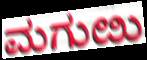
ಮಗುೞು